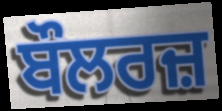
ਬੌਲਰਜ਼